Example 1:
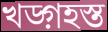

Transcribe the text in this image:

খড়্গহস্ত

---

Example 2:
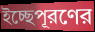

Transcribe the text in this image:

ইচ্ছেপূরণের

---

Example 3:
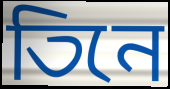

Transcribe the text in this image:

তিনে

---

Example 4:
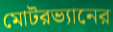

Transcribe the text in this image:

মোটরভ্যানের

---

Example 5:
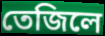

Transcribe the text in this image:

তেজিলে